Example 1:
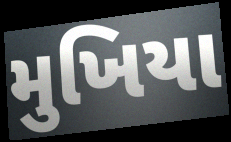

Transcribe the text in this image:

મુખિયા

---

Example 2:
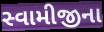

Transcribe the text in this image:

સ્વામીજીના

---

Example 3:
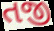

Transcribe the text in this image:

તજી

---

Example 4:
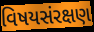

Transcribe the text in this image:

વિષયસંરક્ષણ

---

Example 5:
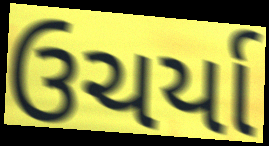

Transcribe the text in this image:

ઉચર્યા